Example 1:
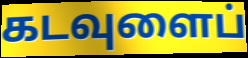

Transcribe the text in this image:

கடவுளைப்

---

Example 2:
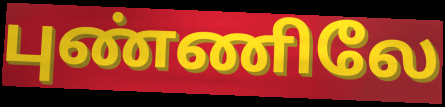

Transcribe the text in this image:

புண்ணிலே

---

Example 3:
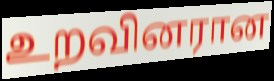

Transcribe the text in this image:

உறவினரான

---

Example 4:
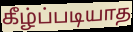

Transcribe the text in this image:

கீழ்ப்படியாத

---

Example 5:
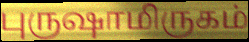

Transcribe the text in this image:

புருஷாமிருகம்